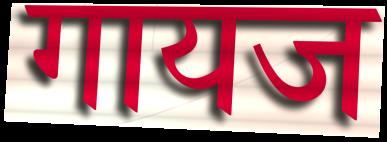
गायज